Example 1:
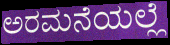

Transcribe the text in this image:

ಅರಮನೆಯಲ್ಲೆ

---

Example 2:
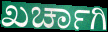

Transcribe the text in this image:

ಖರ್ಚಾಗಿ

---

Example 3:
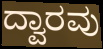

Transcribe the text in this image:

ದ್ವಾರವು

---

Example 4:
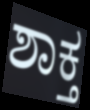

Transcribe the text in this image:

ಶಾಕ್ತ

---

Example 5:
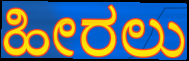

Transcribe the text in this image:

ಹೀರಲು